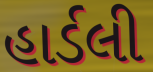
હાર્ડલી